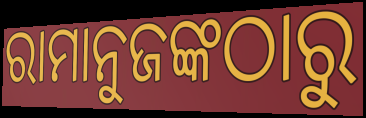
ରାମାନୁଜଙ୍କଠାରୁ